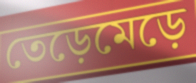
তেড়েমেড়ে